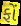
ફોં